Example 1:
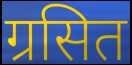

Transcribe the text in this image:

ग्रसित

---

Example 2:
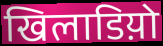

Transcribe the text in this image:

खिलाडिय़ो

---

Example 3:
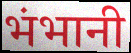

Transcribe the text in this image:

भंभानी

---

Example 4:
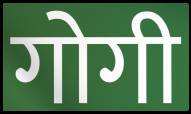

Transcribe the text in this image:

गोगी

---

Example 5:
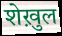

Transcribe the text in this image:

शेख़ुल